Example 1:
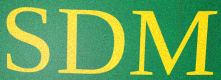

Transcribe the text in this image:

SDM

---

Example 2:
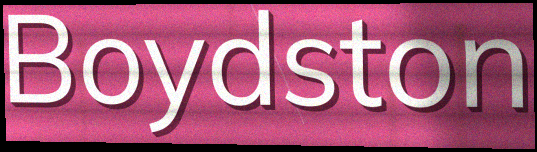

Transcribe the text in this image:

Boydston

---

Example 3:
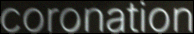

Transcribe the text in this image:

coronation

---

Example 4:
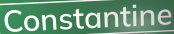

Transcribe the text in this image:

Constantine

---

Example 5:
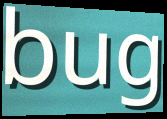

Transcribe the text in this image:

bug